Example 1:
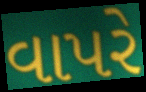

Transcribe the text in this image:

વાપરે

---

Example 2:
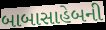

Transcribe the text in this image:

બાબાસાહેબની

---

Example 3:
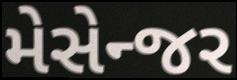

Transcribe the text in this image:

મેસેન્જર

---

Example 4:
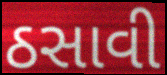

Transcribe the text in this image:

ઠસાવી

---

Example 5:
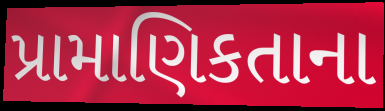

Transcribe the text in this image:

પ્રામાણિકતાના